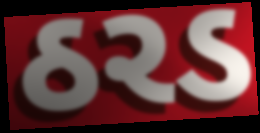
ઠરડ